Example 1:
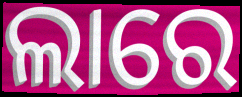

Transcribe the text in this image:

ଲାରେ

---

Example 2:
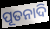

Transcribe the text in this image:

ପୂତନାଦି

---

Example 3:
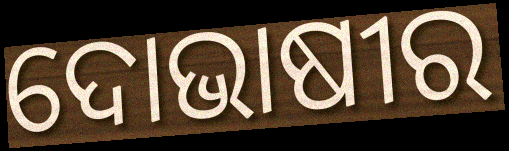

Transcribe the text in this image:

ଦୋଭାଷୀର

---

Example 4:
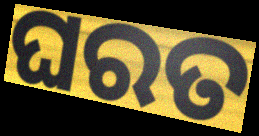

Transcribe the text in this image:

ଘରତ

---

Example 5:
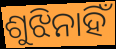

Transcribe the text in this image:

ଶୁଝିନାହିଁ